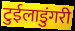
टुईलाडुंगरी